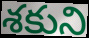
శకుని